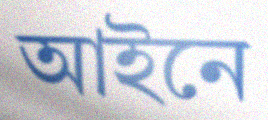
আইনে